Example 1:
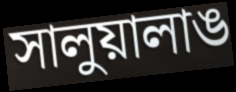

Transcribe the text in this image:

সালুয়ালাঙ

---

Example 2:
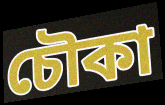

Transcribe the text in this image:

চৌকা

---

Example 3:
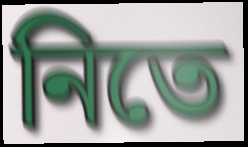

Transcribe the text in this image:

নিতে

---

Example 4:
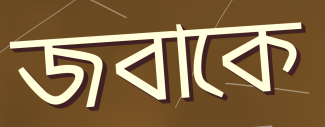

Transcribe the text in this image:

জবাকে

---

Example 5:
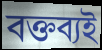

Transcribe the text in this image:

বক্তব্যই